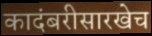
कादंबरीसारखेच